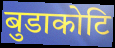
बुडाकोटि